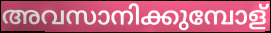
അവസാനിക്കുമ്പോള്